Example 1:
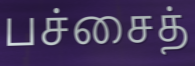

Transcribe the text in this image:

பச்சைத்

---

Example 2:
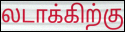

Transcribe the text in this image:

லடாக்கிற்கு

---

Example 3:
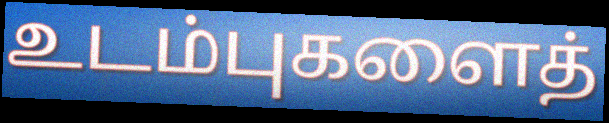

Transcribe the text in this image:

உடம்புகளைத்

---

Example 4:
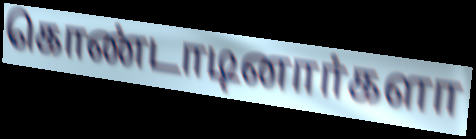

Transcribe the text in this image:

கொண்டாடினார்களா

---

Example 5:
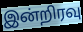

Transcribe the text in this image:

இன்றிரவு